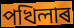
পখিলাৰ